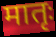
मातृः